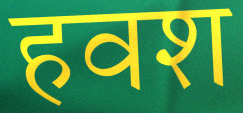
हवश